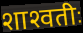
शाश्वतीः